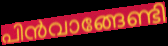
പിൻവാങ്ങേണ്ടി